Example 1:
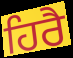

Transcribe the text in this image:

ਹਿਰੈ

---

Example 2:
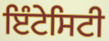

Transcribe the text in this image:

ਇੰਟੇਸਿਟੀ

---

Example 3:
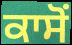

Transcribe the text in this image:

ਕਾਸੋਂ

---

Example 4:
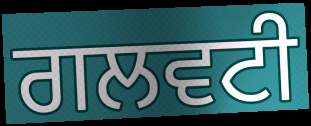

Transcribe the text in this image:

ਗਲਵਟੀ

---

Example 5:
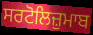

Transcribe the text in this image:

ਸਰਟੋਲਿਜ਼ੁਮਾਬ